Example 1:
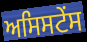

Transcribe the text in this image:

ਅਸਿਸਟੇਂਸ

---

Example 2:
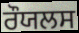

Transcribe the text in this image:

ਰੌਯਲਸ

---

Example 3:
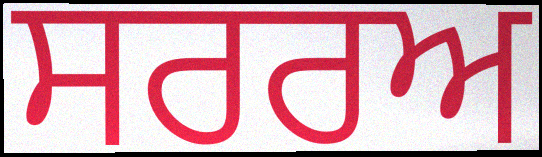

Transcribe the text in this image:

ਸਰਰਅ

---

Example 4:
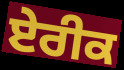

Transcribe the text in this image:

ਏਰੀਕ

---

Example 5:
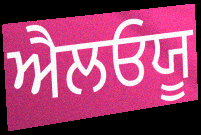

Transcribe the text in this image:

ਐਲਓਯੂ